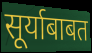
सूर्याबाबत